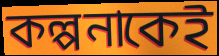
কল্পনাকেই